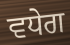
ਵਧੇਗ